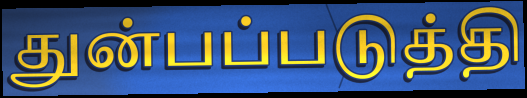
துன்பப்படுத்தி